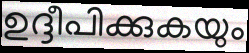
ഉദ്ദീപിക്കുകയും